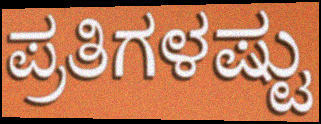
ಪ್ರತಿಗಳಷ್ಟು